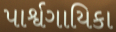
પાર્શ્વગાયિકા